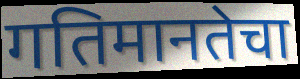
गतिमानतेचा